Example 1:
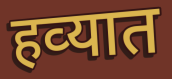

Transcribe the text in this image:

हव्‍यात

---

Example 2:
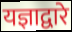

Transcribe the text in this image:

यज्ञाद्वारे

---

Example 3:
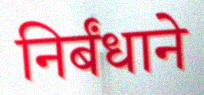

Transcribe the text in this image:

निर्बंधाने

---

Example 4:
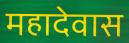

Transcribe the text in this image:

महादेवास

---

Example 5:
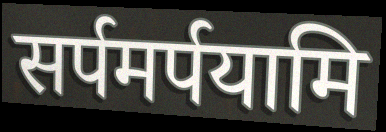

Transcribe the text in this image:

सर्पमर्पयामि